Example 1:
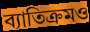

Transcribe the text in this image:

ব্যাতিক্রমও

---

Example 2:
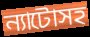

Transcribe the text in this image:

ন্যাটোসহ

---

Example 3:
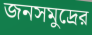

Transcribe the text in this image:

জনসমুদ্রের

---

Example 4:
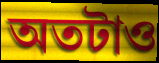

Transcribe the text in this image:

অতটাও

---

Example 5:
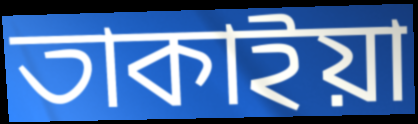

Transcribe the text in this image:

তাকাইয়া